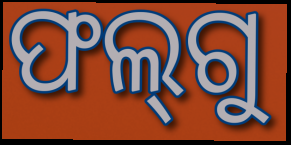
ଫଲ୍‌ଗୁ